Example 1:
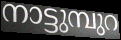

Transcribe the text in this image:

നാട്ടുമ്പുറ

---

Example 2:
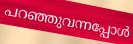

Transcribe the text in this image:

പറഞ്ഞുവന്നപ്പോൾ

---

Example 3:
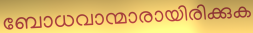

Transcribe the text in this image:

ബോധവാന്മാരായിരിക്കുക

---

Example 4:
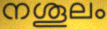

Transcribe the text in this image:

നശൂലം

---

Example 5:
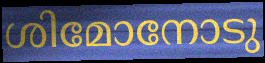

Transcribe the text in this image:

ശിമോനോടു